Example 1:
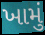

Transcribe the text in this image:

ખામું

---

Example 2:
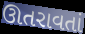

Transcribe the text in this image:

ઊતરાવતાં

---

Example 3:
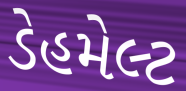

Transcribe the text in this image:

ડેહમેલ્ટ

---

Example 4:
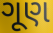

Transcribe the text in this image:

ગૂણ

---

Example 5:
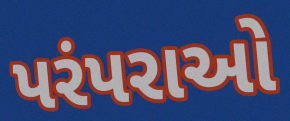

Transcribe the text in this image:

પરંપરાઓ